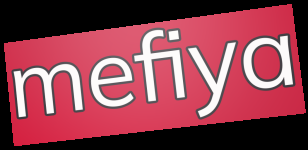
mefiya